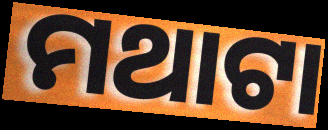
ମଥାଟା